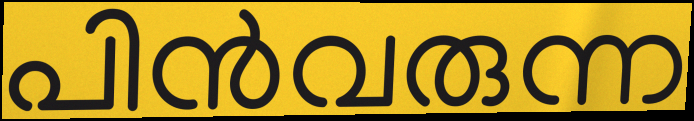
പിൻവരുന്ന